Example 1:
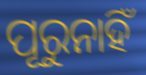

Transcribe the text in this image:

ପୂରୁନାହିଁ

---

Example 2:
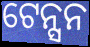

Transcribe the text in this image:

ଟେନ୍ସନ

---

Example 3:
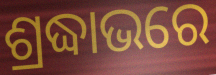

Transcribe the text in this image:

ଶ୍ରଦ୍ଧାଭରେ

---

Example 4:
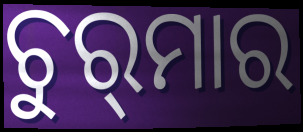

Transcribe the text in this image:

ଚୁର୍‍ମାର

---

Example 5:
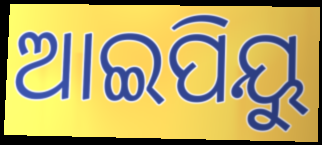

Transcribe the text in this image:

ଆଇପିୟୁ